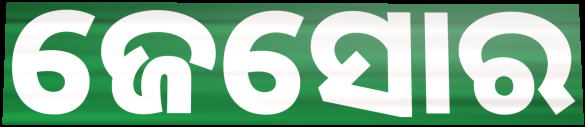
ଜେସୋର